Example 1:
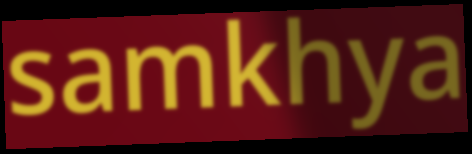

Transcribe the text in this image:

samkhya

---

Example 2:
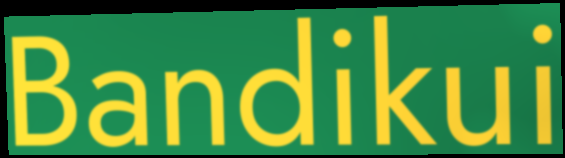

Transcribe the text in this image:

Bandikui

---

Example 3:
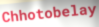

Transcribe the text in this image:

Chhotobelay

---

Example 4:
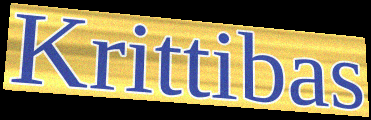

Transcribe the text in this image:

Krittibas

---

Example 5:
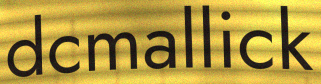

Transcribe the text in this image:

dcmallick